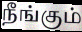
நீங்கும்